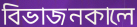
বিভাজনকালে